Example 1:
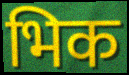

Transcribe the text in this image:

भिक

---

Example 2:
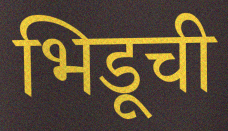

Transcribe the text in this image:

भिडूची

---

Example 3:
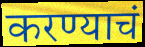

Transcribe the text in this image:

करण्याचं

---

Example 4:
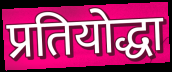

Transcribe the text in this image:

प्रतियोद्धा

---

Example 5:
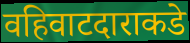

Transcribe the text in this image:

वहिवाटदाराकडे